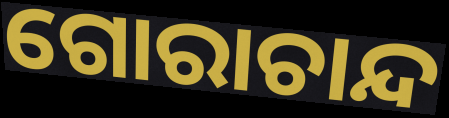
ଗୋରାଚାନ୍ଦ